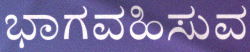
ಭಾಗವಹಿಸುವ